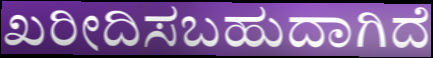
ಖರೀದಿಸಬಹುದಾಗಿದೆ